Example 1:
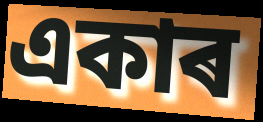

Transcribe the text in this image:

একাৰ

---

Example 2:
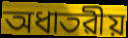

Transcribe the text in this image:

অধাতৱীয়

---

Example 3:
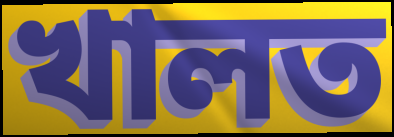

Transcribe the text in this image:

খালত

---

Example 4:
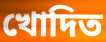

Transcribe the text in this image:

খোদিত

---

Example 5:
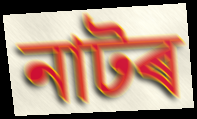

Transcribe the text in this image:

নাটৰ